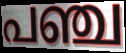
പഞ്ച